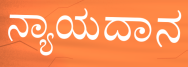
ನ್ಯಾಯದಾನ